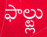
ఫాల్ట్లు